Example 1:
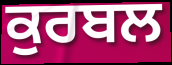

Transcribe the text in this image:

ਕੁਰਬਲ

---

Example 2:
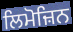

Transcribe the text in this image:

ਲਿਮੋਜ਼ਿਨ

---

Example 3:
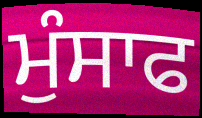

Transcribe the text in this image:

ਮੁੰਸਾਫ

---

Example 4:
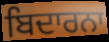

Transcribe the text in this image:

ਬਿਦਾਰਨਾ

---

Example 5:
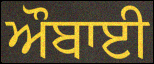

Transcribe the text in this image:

ਔਬਾਈ